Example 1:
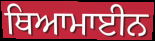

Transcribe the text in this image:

ਥਿਆਮਾਈਨ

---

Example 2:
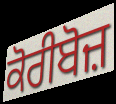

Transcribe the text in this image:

ਕੋਰੀਬੋਜ਼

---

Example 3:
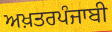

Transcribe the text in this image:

ਅਖ਼ਤਰਪੰਜਾਬੀ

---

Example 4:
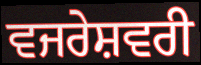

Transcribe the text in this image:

ਵਜਰੇਸ਼ਵਰੀ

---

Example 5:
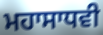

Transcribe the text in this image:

ਮਹਾਸਾਧਵੀ